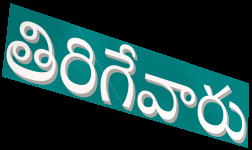
తిరిగేవారు